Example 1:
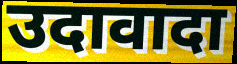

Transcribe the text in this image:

उदावादा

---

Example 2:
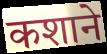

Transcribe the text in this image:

कशाने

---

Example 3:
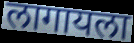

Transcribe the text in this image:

लागायला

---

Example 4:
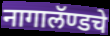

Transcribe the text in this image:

नागालॅण्डचे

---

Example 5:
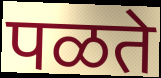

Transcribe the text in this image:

पळते